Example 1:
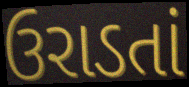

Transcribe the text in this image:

ઉરાડતાં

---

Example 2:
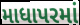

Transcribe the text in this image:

માધાપરમાં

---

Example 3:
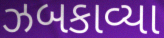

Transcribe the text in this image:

ઝબકાવ્યા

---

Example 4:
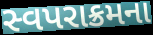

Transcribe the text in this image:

સ્વપરાક્રમના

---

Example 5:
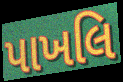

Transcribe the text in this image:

પાખલિ